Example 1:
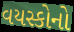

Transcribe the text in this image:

વયસ્કોનો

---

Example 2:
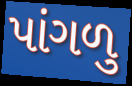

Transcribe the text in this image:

પાંગળુ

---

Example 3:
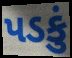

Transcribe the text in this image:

પડકું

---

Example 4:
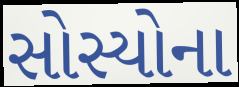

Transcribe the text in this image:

સોસ્યોના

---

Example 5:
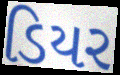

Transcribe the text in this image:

ડિયર